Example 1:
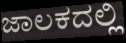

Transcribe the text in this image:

ಜಾಲಕದಲ್ಲಿ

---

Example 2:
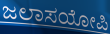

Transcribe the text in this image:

ಜಲಾಸಯೋಪಿ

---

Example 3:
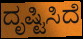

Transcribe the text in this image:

ದೃಷ್ಟಿಸಿದೆ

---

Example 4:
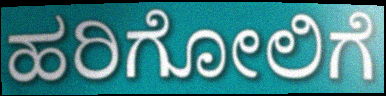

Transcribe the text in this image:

ಹರಿಗೋಲಿಗೆ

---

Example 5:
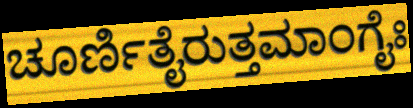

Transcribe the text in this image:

ಚೂರ್ಣಿತೈರುತ್ತಮಾಂಗೈಃ